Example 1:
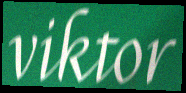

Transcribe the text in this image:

viktor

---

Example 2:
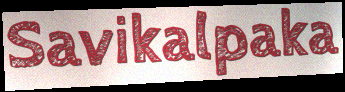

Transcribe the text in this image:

Savikalpaka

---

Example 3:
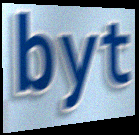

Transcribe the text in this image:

byt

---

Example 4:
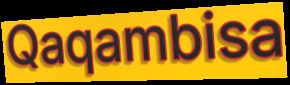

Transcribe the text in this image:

Qaqambisa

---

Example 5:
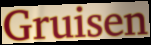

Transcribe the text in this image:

Gruisen